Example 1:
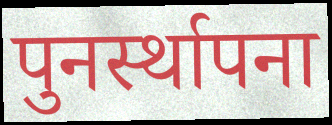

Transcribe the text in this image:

पुनर्स्थापना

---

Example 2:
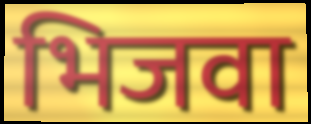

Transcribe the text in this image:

भिजवा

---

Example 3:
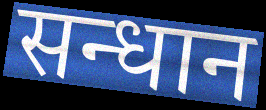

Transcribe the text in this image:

सन्धान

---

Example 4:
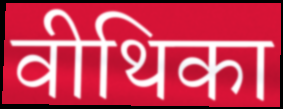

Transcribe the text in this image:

वीथिका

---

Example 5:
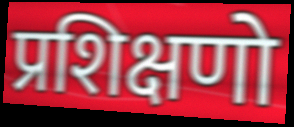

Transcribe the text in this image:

प्रशिक्षणो